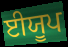
ਈਯੂਪ